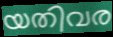
യതിവര